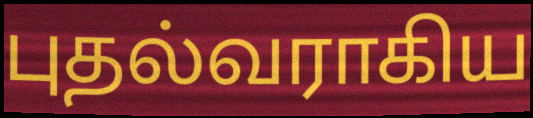
புதல்வராகிய